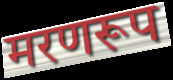
मरणरूप